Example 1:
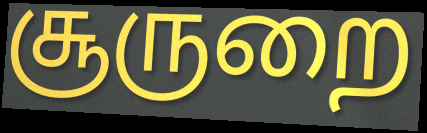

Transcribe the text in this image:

சூருறை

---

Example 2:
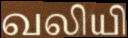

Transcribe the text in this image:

வலியி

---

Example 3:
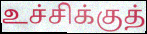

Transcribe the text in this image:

உச்சிக்குத்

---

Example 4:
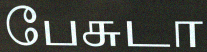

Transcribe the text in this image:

பேசுடா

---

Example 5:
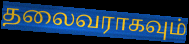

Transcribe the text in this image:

தலைவராகவும்